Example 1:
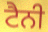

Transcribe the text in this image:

ਟੈਨੀ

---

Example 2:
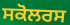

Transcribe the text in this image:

ਸਕੋਲਰਸ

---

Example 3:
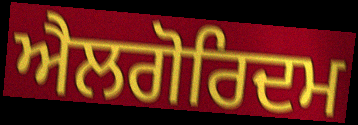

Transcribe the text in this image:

ਐਲਗੋਰਿਦਮ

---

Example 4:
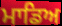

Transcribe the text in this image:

ਮਾਡਿਅ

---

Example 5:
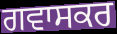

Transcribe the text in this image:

ਗਵਾਸਕਰ